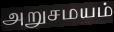
அறுசமயம்